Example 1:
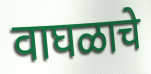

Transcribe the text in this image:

वाघळाचे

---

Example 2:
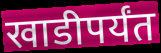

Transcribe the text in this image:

खाडीपर्यंत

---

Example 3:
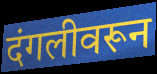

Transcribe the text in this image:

दंगलीवरून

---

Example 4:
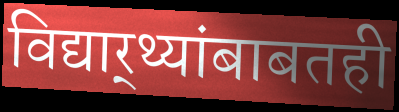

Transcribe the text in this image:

विद्यार्थ्यांबाबतही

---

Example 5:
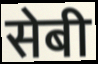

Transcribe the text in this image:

सेबी